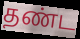
தண்ட